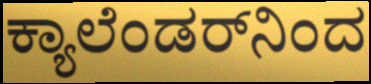
ಕ್ಯಾಲೆಂಡರ್‌ನಿಂದ